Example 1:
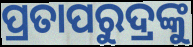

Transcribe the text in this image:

ପ୍ରତାପରୁଦ୍ରଙ୍କୁ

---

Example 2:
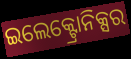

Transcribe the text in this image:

ଇଲେକ୍ଟ୍ରୋନିକ୍ସର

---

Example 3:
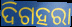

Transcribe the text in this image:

ଦିଗହରା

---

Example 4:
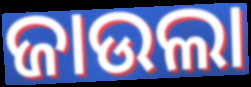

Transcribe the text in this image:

ଜାଉଲା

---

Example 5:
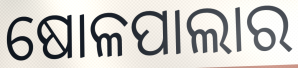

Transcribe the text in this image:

ଷୋଳପାଲାର